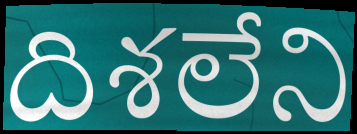
దిశలేని